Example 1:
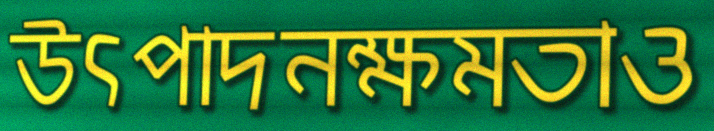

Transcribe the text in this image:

উৎপাদনক্ষমতাও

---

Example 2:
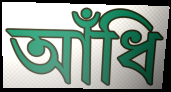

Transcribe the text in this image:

আঁধি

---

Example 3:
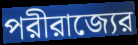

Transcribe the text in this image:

পরীরাজ্যের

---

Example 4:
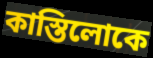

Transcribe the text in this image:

কাস্তিলোকে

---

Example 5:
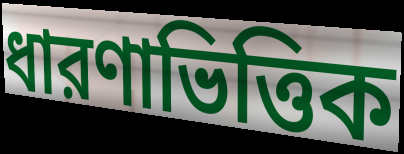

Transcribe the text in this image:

ধারণাভিত্তিক